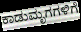
ಕಾಡುಮೃಗಗಳಿಗೆ